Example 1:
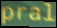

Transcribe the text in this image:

pral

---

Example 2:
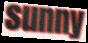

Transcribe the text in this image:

sunny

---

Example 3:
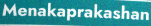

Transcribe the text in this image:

Menakaprakashan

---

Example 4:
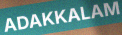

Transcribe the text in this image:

ADAKKALAM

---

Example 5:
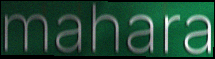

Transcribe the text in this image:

mahara